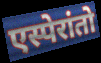
एस्पेरांतो